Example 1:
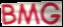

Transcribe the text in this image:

BMG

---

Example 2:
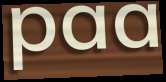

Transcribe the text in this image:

paa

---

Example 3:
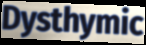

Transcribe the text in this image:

Dysthymic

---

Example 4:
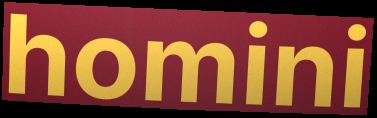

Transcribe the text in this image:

homini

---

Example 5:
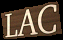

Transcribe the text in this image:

LAC